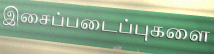
இசைப்படைப்புகளை